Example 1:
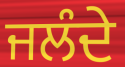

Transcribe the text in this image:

ਜਲੰਦੇ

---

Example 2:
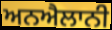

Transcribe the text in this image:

ਅਨਐਲਾਨੀ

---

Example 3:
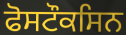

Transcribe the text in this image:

ਫੋਸਟੌਕਸਿਨ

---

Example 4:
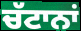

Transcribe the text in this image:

ਚੱਟਾਨਾਂ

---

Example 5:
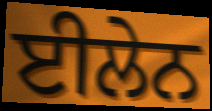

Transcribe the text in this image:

ਈਲੇਨ